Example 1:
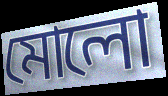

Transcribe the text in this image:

মোলো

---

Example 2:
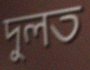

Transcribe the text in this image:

দুলত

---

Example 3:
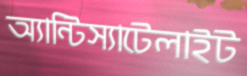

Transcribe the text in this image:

অ্যান্টিস্যাটেলাইট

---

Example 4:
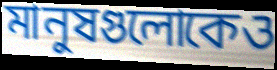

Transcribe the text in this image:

মানুষগুলোকেও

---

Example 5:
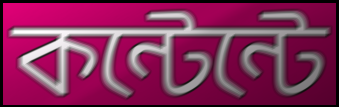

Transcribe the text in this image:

কন্টেন্টে